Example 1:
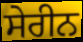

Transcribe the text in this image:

ਸੇਰੀਨ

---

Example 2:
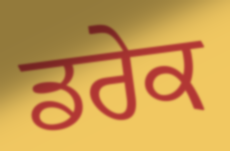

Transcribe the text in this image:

ਡਰੇਕ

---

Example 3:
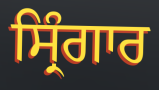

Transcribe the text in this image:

ਸ੍ਰਿੰਗਾਰ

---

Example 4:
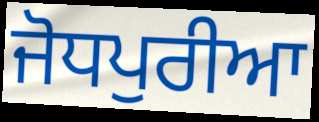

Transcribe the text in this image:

ਜੋਧਪੁਰੀਆ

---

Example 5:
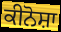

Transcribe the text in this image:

ਕੀਨੋਸ਼ਾ